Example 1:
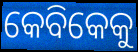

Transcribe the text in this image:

କେବିକେକୁ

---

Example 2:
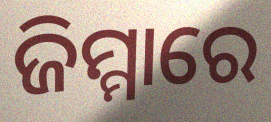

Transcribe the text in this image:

ଜିମ୍ମାରେ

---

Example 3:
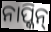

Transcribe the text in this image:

ନାପ୍କିନ୍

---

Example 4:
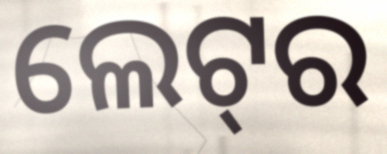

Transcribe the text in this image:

ଲେଟ୍‌ର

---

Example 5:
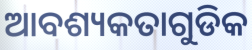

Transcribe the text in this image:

ଆବଶ୍ୟକତାଗୁଡିକ